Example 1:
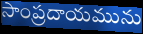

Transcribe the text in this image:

సాంప్రదాయమును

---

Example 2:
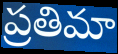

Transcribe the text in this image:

ప్రతిమా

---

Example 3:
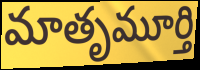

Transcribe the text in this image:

మాతృమూర్తి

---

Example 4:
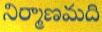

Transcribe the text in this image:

నిర్మాణమది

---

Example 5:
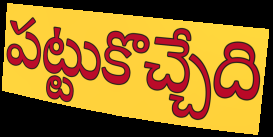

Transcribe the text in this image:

పట్టుకొచ్చేది